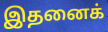
இதனைக்